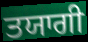
ਤਯਾਗੀ